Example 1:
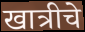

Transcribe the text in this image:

खात्रीचे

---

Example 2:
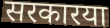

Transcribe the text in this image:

सरकारया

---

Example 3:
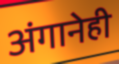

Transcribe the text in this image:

अंगानेही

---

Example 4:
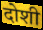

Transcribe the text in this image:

दोशी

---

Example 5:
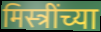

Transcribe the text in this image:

मिस्त्रींच्या